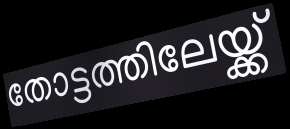
തോട്ടത്തിലേയ്ക്ക്